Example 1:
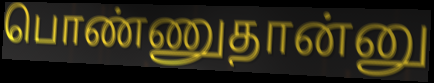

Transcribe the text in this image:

பொண்ணுதான்னு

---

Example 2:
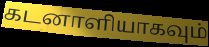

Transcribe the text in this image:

கடனாளியாகவும்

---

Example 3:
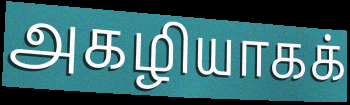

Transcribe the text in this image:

அகழியாகக்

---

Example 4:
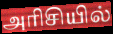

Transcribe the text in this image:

அரிசியில்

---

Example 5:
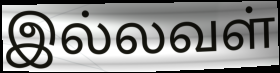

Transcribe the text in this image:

இல்லவள்